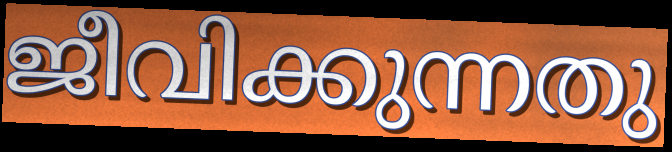
ജീവിക്കുന്നതു